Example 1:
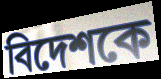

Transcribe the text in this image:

বিদেশকে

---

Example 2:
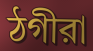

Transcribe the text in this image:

ঠগীরা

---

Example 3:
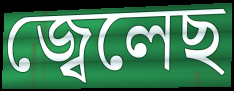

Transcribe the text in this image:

জ্বেলেছ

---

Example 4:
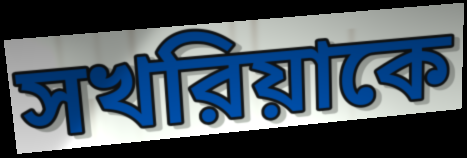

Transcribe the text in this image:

সখরিয়াকে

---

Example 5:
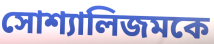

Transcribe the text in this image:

সোশ্যালিজমকে